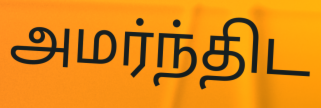
அமர்ந்திட